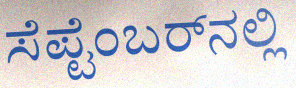
ಸೆಪ್ಟೆಂಬರ್‌ನಲ್ಲಿ